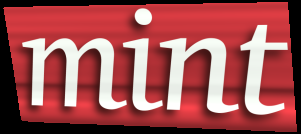
mint